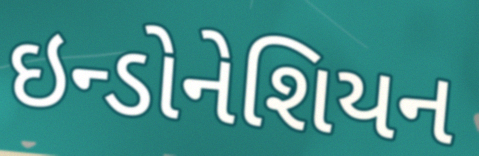
ઇન્ડોનેશિયન